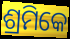
ଶ୍ରମିକେ